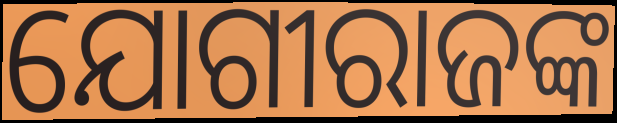
ଯୋଗୀରାଜଙ୍କ